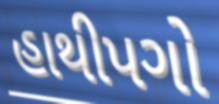
હાથીપગો